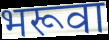
भरूवा